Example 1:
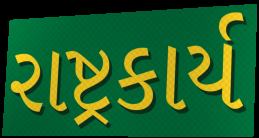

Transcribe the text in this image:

રાષ્ટ્રકાર્ય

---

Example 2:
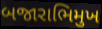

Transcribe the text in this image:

બજારાભિમુખ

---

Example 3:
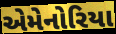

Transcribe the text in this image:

એમેનોરિયા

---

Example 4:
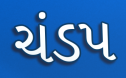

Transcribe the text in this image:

ચંડપ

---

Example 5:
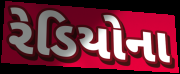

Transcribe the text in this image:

રેડિયોના